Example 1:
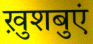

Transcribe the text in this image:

ख़ुशबुएं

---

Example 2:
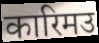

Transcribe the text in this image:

कारिमउ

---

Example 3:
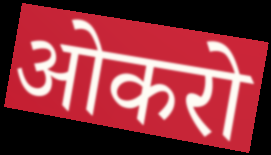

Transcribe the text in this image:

ओकरो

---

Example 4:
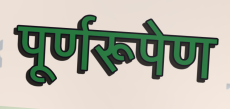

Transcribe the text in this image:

पूर्णरूपेण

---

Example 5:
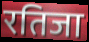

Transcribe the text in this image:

रतिजा